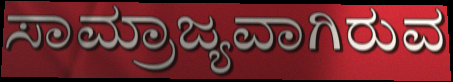
ಸಾಮ್ರಾಜ್ಯವಾಗಿರುವ